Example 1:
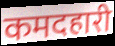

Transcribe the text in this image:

कमदहारी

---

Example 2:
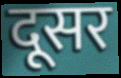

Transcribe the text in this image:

दूसर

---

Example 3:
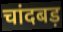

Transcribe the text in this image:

चांदबड़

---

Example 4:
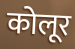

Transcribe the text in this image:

कोलूर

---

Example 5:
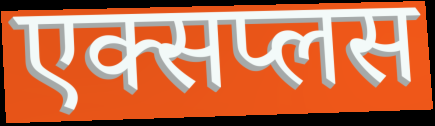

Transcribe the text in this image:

एक्सप्लस